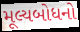
મૂલ્યબોધનો